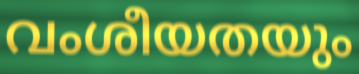
വംശീയതയും